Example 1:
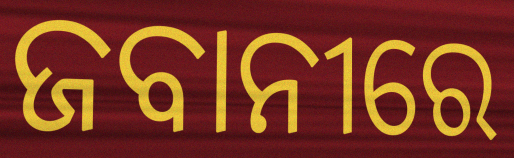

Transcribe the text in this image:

ଜବାନୀରେ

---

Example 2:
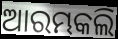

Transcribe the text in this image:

ଆରମ୍ଭକଲି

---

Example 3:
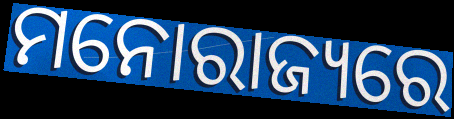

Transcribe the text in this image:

ମନୋରାଜ୍ୟରେ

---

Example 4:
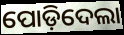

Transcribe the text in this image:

ପୋଡ଼ିଦେଲା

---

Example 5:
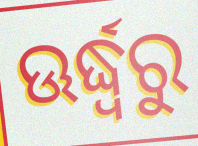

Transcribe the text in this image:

ଊର୍ଦ୍ଧ୍ଵରୁ